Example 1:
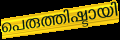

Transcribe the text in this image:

പെരുത്തിഷ്ടായി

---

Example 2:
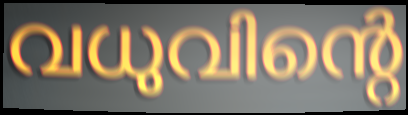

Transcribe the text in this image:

വധുവിന്റെ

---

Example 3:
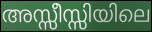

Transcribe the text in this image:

അസ്സീസ്സിയിലെ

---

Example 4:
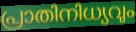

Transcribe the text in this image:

പ്രാതിനിധ്യവും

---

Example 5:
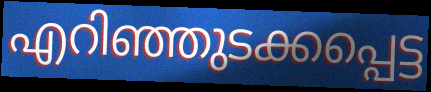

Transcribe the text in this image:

എറിഞ്ഞുടക്കപ്പെട്ട